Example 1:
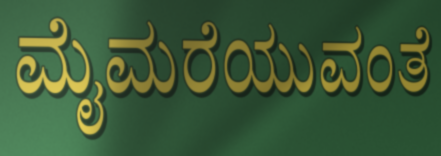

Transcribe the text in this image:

ಮೈಮರೆಯುವಂತೆ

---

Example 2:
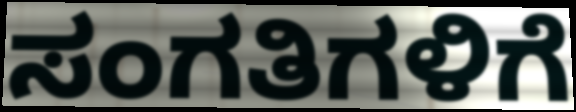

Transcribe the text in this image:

ಸಂಗತಿಗಳಿಗೆ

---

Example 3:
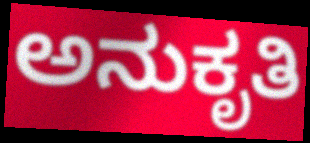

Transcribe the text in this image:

ಅನುಕೃತಿ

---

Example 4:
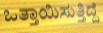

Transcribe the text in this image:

ಒತ್ತಾಯಿಸುತ್ತಿದ್ದೆ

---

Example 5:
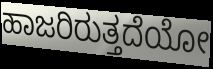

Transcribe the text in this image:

ಹಾಜರಿರುತ್ತದೆಯೋ